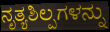
ನೃತ್ಯಶಿಲ್ಪಗಳನ್ನು